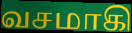
வசமாகி